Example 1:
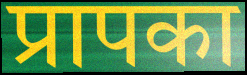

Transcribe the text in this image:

प्रापका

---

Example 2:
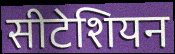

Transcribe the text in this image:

सीटेशियन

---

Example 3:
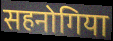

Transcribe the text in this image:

सहनोगिया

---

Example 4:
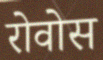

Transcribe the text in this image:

रोवोस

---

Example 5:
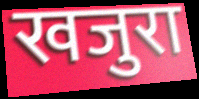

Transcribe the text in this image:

खजुरा